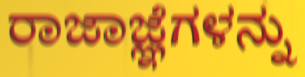
ರಾಜಾಜ್ಞೆಗಳನ್ನು